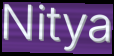
Nitya